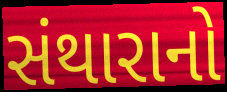
સંથારાનો